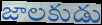
జాలకుడు